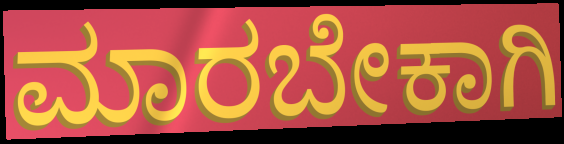
ಮಾರಬೇಕಾಗಿ